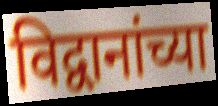
विद्वानांच्या